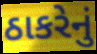
ઠાકરેનું